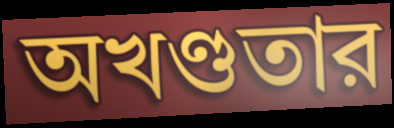
অখণ্ডতার